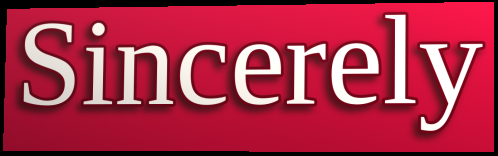
Sincerely